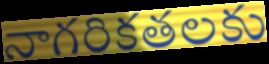
నాగరికతలకు